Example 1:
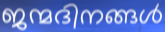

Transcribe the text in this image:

ജന്മദിനങ്ങൾ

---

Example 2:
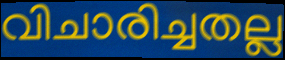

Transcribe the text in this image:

വിചാരിച്ചതല്ല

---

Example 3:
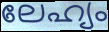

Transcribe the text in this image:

ലേഹ്യം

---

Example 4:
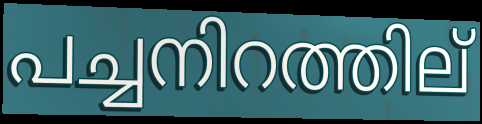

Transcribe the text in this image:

പച്ചനിറത്തില്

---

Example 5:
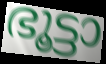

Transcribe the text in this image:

ഭൂട്ടാ